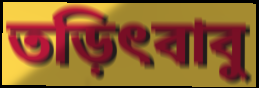
তড়িৎবাবু